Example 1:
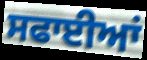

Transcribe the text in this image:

ਸਫਾਈਆਂ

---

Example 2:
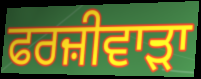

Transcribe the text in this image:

ਫਰਜ਼ੀਵਾੜਾ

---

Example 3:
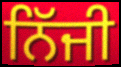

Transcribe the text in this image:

ਨਿੱਜੀ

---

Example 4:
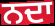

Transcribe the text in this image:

ਨਦਾ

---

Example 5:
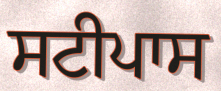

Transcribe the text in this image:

ਸਟੀਪਾਸ